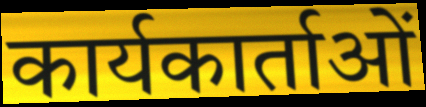
कार्यकार्ताओं